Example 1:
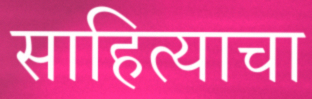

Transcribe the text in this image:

साहित्याचा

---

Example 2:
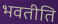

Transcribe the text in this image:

भवतीति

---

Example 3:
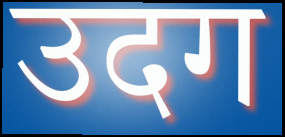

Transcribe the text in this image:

उदग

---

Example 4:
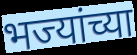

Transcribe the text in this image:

भज्यांच्या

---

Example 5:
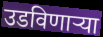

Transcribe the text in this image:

उडविणार्‍या